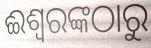
ଈଶ୍ଵରଙ୍କଠାରୁ